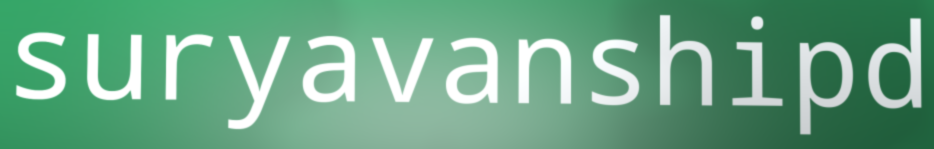
suryavanshipd